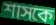
শাসকে